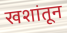
खशांतून